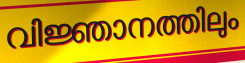
വിജ്ഞാനത്തിലും